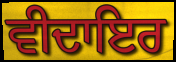
ਵੀਦਾਇਰ